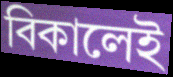
বিকালেই